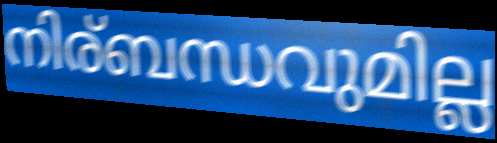
നിര്ബന്ധവുമില്ല